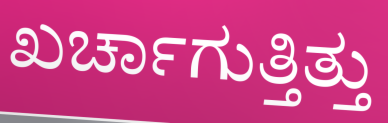
ಖರ್ಚಾಗುತ್ತಿತ್ತು